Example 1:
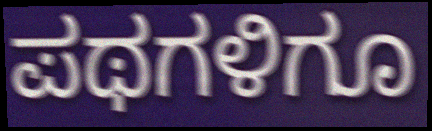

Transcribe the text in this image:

ಪಥಗಳಿಗೂ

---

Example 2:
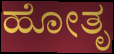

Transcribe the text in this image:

ಹೋತೃ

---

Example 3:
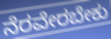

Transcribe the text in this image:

ನೆರವೇರಬೇಕು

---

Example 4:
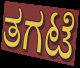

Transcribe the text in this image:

ತಗಟೆ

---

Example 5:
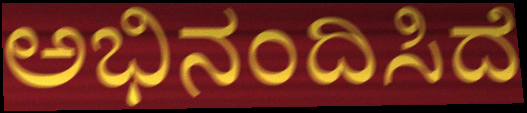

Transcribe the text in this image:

ಅಭಿನಂದಿಸಿದೆ